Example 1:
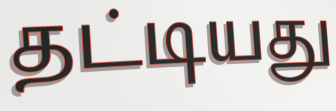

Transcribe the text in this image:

தட்டியது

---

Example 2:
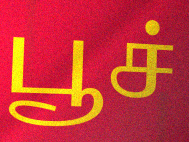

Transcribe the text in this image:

பூச்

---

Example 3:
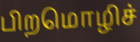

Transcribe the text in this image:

பிறமொழிச்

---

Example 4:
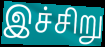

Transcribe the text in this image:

இச்சிறு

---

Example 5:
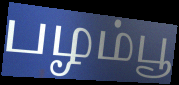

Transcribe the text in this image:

பழம்பூ